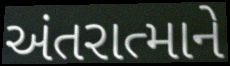
અંતરાત્માને